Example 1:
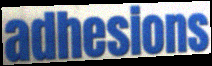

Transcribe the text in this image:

adhesions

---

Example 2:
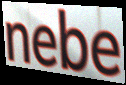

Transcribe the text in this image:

nebe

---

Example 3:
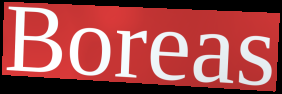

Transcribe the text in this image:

Boreas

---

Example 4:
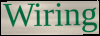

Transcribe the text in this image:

Wiring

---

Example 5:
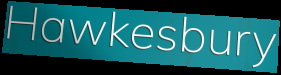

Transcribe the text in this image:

Hawkesbury